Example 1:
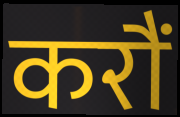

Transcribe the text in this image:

करौं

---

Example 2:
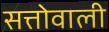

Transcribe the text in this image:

सत्तोवाली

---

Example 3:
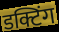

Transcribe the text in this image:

डक्टिंग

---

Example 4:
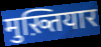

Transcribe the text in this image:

मुख़्तियार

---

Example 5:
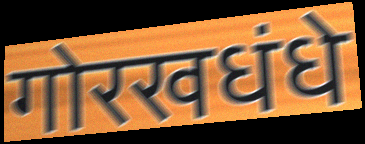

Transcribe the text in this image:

गोरखधंधे